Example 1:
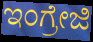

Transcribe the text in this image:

ಇಂಗ್ರೇಜಿ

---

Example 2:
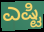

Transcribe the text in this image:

ಎಷ್ಟಿ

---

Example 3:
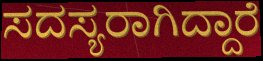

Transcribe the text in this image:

ಸದಸ್ಯರಾಗಿದ್ದಾರೆ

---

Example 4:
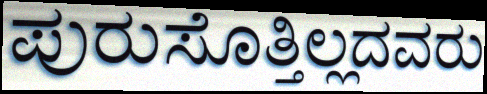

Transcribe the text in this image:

ಪುರುಸೊತ್ತಿಲ್ಲದವರು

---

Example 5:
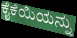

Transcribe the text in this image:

ಕೈಕೆಯಿಯನ್ನು